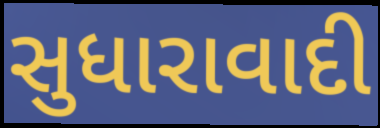
સુધારાવાદી